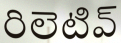
రిలెటివ్